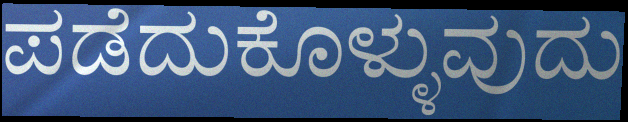
ಪಡೆದುಕೊಳ್ಳುವುದು